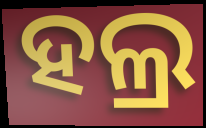
ହଲ୍ର